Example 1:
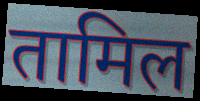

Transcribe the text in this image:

तामिल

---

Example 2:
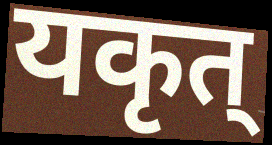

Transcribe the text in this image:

यकृत्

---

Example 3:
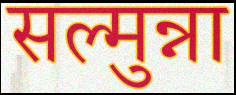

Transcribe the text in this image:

सल्मुन्ना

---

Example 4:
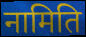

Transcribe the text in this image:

नामिति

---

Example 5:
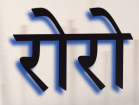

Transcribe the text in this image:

रोरो